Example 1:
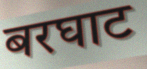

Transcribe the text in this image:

बरघाट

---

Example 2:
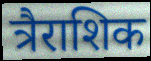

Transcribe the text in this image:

त्रैराशिक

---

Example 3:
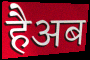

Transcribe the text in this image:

हैअब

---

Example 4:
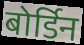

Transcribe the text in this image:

बोर्डिन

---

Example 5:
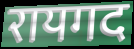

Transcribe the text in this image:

रायगद